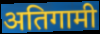
अतिगामी